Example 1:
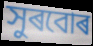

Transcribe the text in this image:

সুৰবোৰ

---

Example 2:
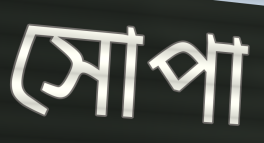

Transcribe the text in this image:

সোপা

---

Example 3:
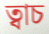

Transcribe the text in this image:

ত্বাচ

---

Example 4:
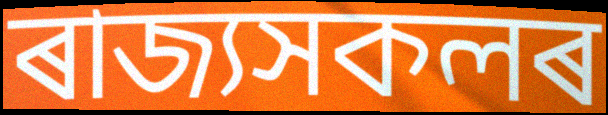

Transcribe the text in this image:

ৰাজ্যসকলৰ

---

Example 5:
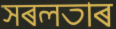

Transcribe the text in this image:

সৰলতাৰ